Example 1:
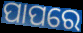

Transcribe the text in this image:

ପାପରେ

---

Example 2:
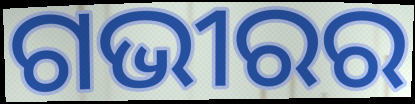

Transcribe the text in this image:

ଗଭୀରର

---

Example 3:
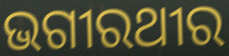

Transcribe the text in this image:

ଭଗୀରଥୀର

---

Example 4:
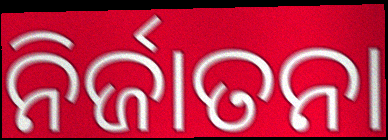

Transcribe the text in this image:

ନିର୍ଜାତନା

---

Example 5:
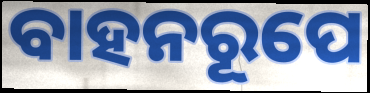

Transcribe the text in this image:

ବାହନରୂପେ